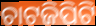
ଚାଟଜିପିଟି